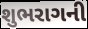
શુભરાગની